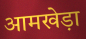
आमखेड़ा